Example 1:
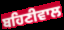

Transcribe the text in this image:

ਬਹਿਣੀਵਾਲ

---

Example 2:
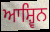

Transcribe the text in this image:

ਆਸ਼੍ਵਿਨ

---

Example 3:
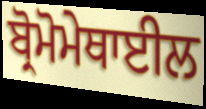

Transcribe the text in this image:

ਬ੍ਰੋਮੋਮੇਥਾਈਲ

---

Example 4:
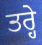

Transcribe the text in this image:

ਤਰ੍ਹੇ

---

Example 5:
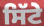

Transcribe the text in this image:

ਸਿੱਟੇ